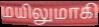
மயிலுமாகி